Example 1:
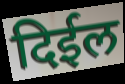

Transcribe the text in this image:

दिईल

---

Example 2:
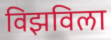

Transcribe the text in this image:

विझविला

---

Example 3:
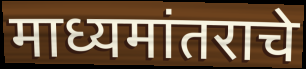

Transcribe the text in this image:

माध्यमांतराचे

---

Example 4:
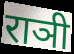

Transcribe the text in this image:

राञी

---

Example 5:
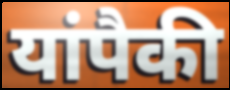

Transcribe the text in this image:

यांपैकी